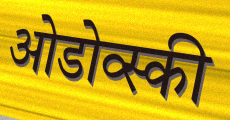
ओडोव्स्की